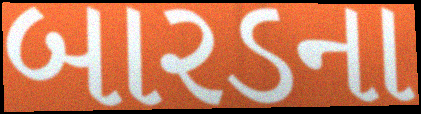
બારડના